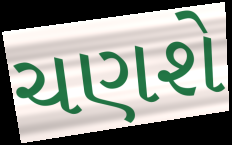
ચણશે